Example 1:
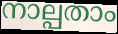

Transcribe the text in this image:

നാല്പതാം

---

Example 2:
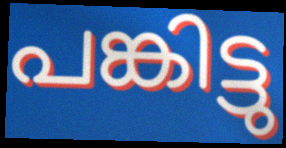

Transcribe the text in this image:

പങ്കിട്ടു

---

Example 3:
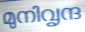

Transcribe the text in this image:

മുനിവൃന്ദ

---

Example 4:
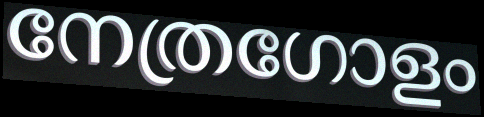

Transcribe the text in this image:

നേത്രഗോളം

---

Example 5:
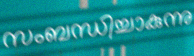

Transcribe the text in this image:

സംബന്ധിച്ചാകുന്നു